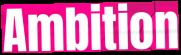
Ambition